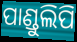
ପାଣ୍ଡୁଲିପି